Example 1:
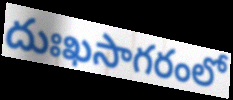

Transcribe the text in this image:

దుఃఖసాగరంలో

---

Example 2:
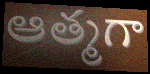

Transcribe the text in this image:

ఆత్మగా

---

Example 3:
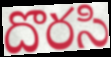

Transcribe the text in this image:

దొరసి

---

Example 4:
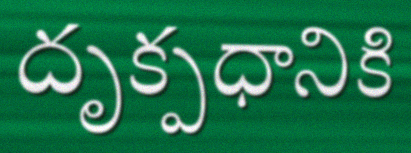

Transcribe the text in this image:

దృక్పధానికి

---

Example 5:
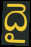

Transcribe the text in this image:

దై